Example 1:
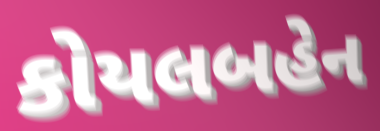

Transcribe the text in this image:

કોયલબહેન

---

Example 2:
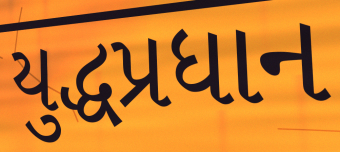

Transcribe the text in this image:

યુદ્ધપ્રધાન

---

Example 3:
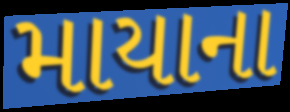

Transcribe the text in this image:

માયાના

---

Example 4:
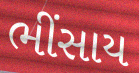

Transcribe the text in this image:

ભીંસાય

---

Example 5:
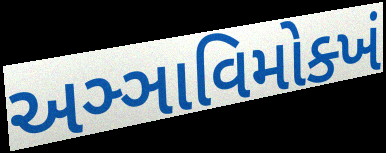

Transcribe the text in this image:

અઞ્ઞાવિમોક્ખં